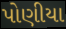
પોણીયા